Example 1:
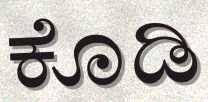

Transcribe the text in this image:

ಕೊಡಿ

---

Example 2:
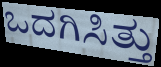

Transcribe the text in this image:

ಒದಗಿಸಿತ್ತು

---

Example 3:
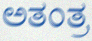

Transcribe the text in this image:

ಅತಂತ್ರ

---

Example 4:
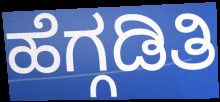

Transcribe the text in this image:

ಹೆಗ್ಗಡಿತಿ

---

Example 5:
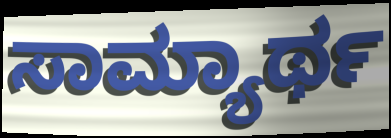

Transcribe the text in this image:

ಸಾಮ್ಯಾರ್ಥ